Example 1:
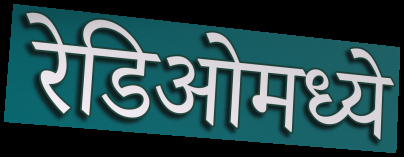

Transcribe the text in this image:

रेडिओमध्ये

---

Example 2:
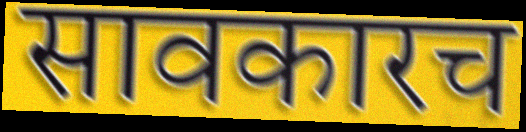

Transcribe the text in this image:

सावकारच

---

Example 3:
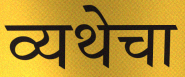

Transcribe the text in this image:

व्यथेचा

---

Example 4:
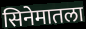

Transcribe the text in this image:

सिनेमातला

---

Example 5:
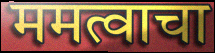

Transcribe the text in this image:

ममत्वाचा